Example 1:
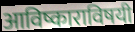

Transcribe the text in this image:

आविष्काराविषयी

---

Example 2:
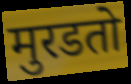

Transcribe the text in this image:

मुरडतो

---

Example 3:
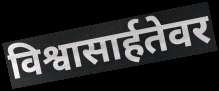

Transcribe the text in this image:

विश्वासार्हतेवर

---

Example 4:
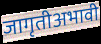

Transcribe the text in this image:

जागृतीअभावी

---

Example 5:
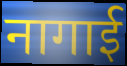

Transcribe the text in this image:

नागाई